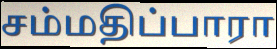
சம்மதிப்பாரா